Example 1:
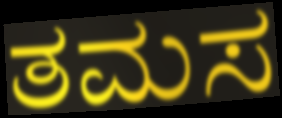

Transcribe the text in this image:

ತಮಸ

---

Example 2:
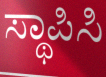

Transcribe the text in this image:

ಸ್ಥಾಪಿಸಿ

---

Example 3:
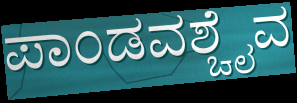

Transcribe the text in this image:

ಪಾಂಡವಶ್ಚೈವ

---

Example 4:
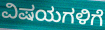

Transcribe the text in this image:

ವಿಷಯಗಳಿಗೆ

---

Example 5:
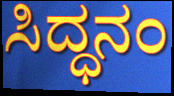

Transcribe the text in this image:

ಸಿದ್ಧನಂ